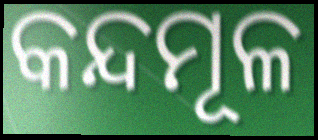
କନ୍ଦମୂଳ